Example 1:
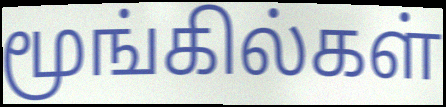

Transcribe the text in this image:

மூங்கில்கள்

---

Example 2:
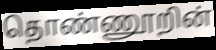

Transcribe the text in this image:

தொண்ணூறின்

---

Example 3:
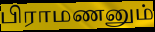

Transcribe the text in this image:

பிராமணனும்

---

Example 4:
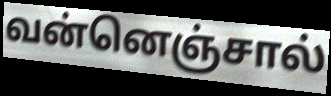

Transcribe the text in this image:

வன்னெஞ்சால்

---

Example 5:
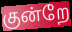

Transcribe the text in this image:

குன்றே